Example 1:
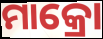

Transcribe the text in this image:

ମାକ୍ରୋ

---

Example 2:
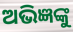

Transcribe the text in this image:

ଅଭିଜ୍ଞଙ୍କୁ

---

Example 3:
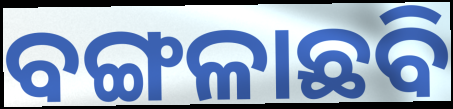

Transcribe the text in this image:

ବଙ୍ଗଳାଛବି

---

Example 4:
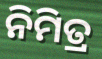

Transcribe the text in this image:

ନିମିତ୍ର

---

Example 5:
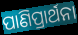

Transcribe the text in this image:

ପାଣିପ୍ରାର୍ଥନା